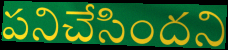
పనిచేసిందని